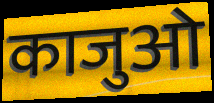
काजुओ